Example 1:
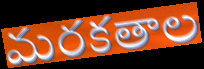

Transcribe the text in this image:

మరకతాల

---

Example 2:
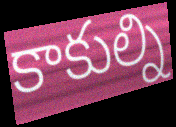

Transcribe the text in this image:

కాకుల్ని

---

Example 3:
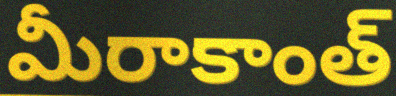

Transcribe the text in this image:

మీరాకాంత్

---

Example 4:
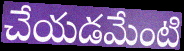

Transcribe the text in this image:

చేయడమేంటి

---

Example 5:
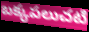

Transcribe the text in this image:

బక్కపలుచటి